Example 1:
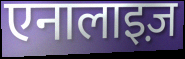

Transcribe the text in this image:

एनालाइज़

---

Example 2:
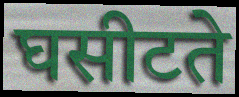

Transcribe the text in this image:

घसीटते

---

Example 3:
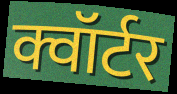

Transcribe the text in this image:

क्‍वॉर्टर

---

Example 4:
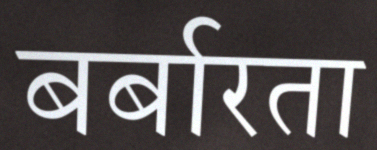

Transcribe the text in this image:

बर्बारता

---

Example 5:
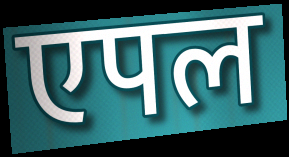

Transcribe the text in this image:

एपल